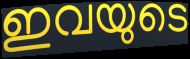
ഇവയുടെ